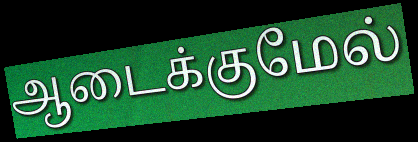
ஆடைக்குமேல்